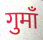
गुमाँ